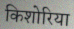
किशोरिया